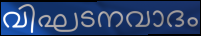
വിഘടനവാദം